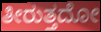
ತೀರುತ್ತದೋ